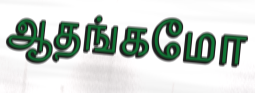
ஆதங்கமோ